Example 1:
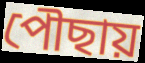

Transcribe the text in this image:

পৌছায়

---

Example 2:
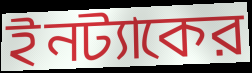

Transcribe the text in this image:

ইনট্যাকের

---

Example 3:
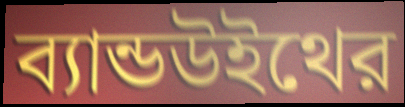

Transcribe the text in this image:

ব্যান্ডউইথের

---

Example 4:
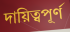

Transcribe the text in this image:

দায়িত্বপূর্ণ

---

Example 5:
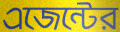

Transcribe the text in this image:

এজেন্টের